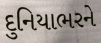
દુનિયાભરને